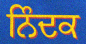
ਨਿੰਦਕ